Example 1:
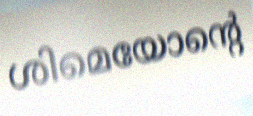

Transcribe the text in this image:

ശിമെയോന്റെ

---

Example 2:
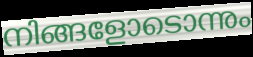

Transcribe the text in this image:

നിങ്ങളോടൊന്നും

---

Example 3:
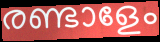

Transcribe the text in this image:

രണ്ടാളേം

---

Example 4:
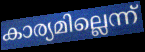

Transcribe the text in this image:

കാര്യമില്ലെന്ന്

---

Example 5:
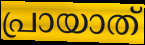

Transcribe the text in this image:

പ്രായാത്